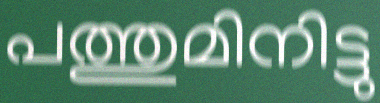
പത്തുമിനിട്ടു